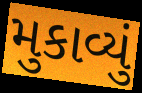
મુકાવ્યું